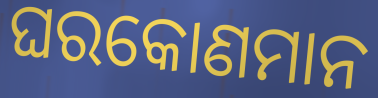
ଘରକୋଣମାନ